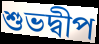
শুভদ্বীপ